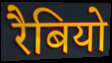
रैबियो